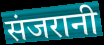
संजरानी